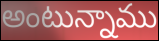
అంటున్నాము